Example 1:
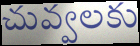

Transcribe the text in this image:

చువ్వలకు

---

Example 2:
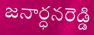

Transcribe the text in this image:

జనార్ధనరెడ్డి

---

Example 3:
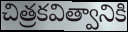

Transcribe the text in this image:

చిత్రకవిత్వానికి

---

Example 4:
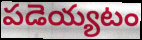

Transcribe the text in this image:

పడెయ్యటం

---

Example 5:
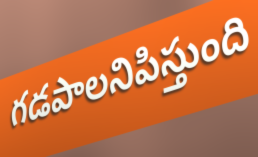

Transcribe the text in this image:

గడపాలనిపిస్తుంది